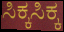
ಸಿಕ್ಕಸಿಕ್ಕ